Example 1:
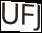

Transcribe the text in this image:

UFJ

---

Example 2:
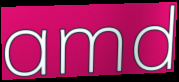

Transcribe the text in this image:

amd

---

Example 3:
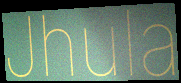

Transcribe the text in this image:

Jhula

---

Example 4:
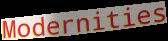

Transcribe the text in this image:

Modernities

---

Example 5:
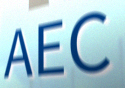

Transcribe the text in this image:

AEC